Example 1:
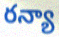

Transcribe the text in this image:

రన్యా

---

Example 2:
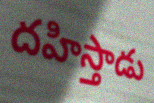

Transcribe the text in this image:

దహిస్తాడు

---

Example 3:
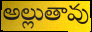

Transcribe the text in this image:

అల్లుతావు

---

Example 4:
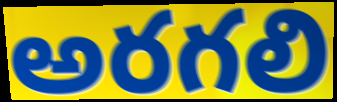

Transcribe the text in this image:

అరగలి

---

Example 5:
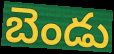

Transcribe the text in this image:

బెండు